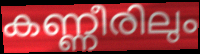
കണ്ണീരിലും